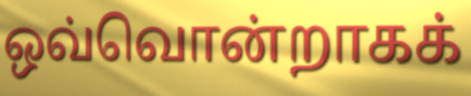
ஒவ்வொன்றாகக்